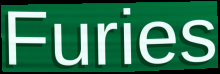
Furies